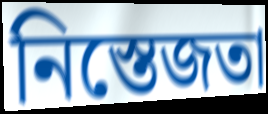
নিস্তেজতা